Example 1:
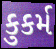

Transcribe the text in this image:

કુકર્મ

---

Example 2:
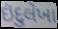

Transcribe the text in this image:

ઇંદુલેખા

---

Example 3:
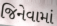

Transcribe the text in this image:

જિનેવામાં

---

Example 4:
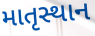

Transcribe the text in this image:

માતૃસ્થાન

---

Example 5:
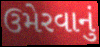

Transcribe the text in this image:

ઉમેરવાનું